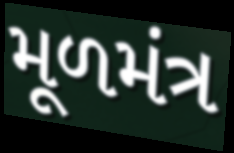
મૂળમંત્ર